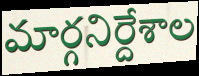
మార్గనిర్దేశాల